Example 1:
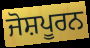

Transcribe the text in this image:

ਜੋਸ਼ਪੂਰਨ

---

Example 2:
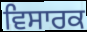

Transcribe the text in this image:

ਵਿਸਾਰਕ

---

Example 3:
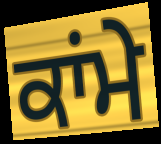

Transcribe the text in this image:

ਕਾਂਮੇ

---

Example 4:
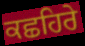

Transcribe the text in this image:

ਕਛਹਿਰੇ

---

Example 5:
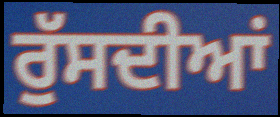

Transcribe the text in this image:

ਰੁੱਸਦੀਆਂ